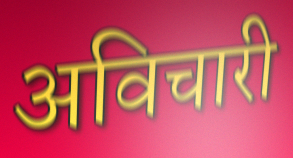
अविचारी